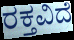
ರಕ್ತವಿದೆ